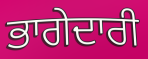
ਭਾਗੇਦਾਰੀ